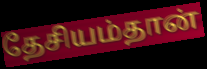
தேசியம்தான்